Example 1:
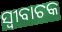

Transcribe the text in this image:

ସ୍ବୀବାଚକ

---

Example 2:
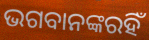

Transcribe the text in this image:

ଭଗବାନଙ୍କରହିଁ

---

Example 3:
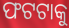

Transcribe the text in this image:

ଫଟଟାକୁ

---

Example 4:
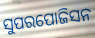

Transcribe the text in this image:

ସୁପରପୋଜିସନ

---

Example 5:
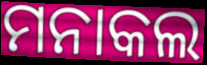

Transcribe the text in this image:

ମନାକଲ